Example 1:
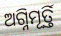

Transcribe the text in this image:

ଅଗ୍ନିମୂର୍ତ୍ତି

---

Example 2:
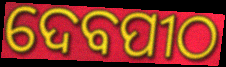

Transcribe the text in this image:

ଦେବପୀଠ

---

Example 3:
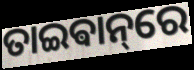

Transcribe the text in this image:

ତାଇଵାନ୍‌ରେ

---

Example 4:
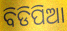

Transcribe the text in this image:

ବିଡିପିଆ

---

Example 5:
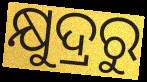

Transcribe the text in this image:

କ୍ଷୁଦ୍ରରୁ